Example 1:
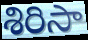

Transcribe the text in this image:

శిరిసా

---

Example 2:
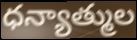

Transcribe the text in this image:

ధన్యాత్ముల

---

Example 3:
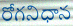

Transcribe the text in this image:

రోగనిధాన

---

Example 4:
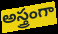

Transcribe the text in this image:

అస్త్రంగా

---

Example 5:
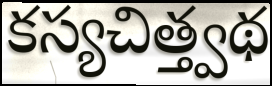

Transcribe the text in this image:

కస్యచిత్త్వథ